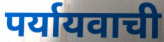
पर्यायवाची